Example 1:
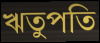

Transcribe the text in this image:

ঋতুপতি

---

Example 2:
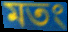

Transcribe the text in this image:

মতং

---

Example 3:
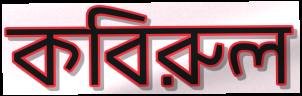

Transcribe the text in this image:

কবিরুল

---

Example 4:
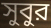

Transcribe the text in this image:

সুবুর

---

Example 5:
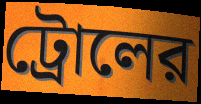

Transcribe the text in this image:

ট্রোলের